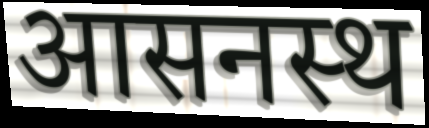
आसनस्थ